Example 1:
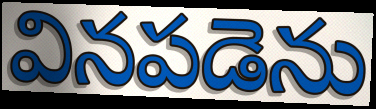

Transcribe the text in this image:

వినపడెను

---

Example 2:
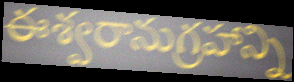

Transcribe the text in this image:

ఈశ్వరానుగ్రహాన్ని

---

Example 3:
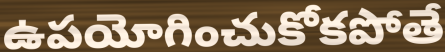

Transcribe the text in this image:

ఉపయోగించుకోకపోతే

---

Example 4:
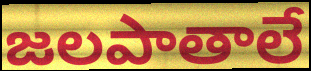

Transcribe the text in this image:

జలపాతాలే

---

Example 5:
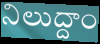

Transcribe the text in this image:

నిలుద్దాం